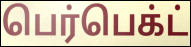
பெர்பெக்ட்